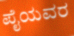
ಪೈಯವರ